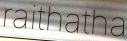
raithatha